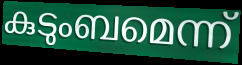
കുടുംബമെന്ന്